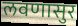
लवणासुर